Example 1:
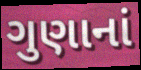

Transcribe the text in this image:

ગુણાનાં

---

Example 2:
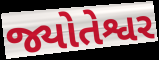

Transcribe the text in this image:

જ્યોતેશ્વર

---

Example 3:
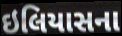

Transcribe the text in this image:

ઇલિયાસના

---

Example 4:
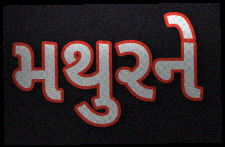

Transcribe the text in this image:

મથુરને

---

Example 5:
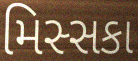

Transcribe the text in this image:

મિસ્સકા